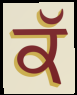
ਕੱ